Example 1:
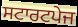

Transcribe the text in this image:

ਸਟਾਰਟਪੇਜ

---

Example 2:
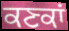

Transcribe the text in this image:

ਕਣਕਾਂ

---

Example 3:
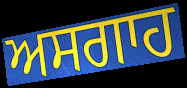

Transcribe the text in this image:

ਅਸਗਾਹ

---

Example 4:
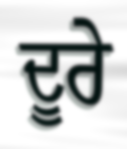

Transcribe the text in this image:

ਦੂਰੇ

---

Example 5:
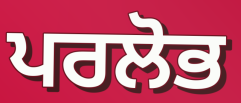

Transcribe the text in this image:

ਪਰਲੋਭ